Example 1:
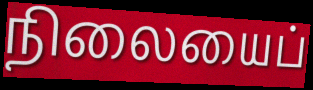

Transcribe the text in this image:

நிலையைப்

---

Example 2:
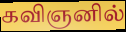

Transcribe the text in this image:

கவிஞனில்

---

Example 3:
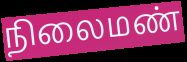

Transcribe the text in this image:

நிலைமண்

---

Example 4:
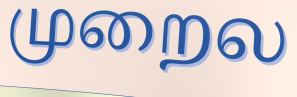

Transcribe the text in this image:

முறைல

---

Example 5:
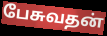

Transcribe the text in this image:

பேசுவதன்